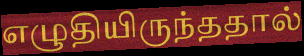
எழுதியிருந்ததால்